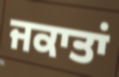
ਜਕਾਤਾਂ